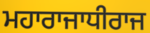
ਮਹਾਰਾਜਾਧੀਰਾਜ